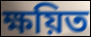
ক্ষয়িত